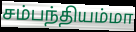
சம்பந்தியம்மா